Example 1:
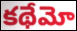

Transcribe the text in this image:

కథేమో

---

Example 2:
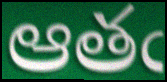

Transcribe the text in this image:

ఆతఁ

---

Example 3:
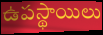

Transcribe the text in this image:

ఉపస్థాయిలు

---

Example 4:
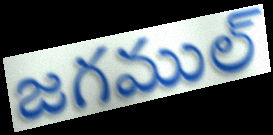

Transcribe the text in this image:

జగముల్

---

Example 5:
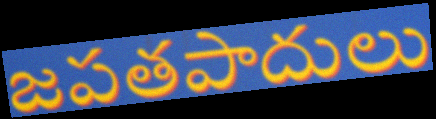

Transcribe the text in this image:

జపతపాదులు